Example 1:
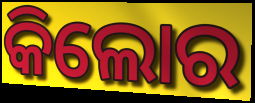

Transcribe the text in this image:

କିଲୋର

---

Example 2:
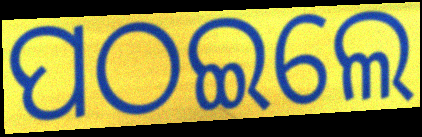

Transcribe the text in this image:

ପଠଇଲେ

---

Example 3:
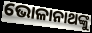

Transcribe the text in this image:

ଭୋଳାନାଥଙ୍କୁ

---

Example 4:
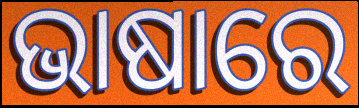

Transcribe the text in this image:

ଭାଷାରେ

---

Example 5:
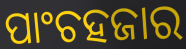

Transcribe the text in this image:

ପାଂଚହଜାର